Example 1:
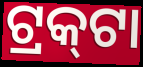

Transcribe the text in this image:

ଟ୍ରକ୍‌ଟା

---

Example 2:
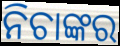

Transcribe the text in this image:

ନିଚାଙ୍କର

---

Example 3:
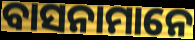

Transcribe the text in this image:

ବାସନାମାନେ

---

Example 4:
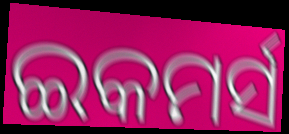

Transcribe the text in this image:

ଇକମର୍ସ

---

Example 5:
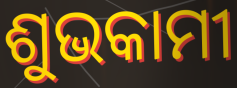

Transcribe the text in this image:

ଶୁଭକାମୀ